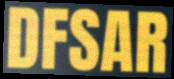
DFSAR